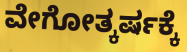
ವೇಗೋತ್ಕರ್ಷಕ್ಕೆ